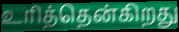
உரித்தென்கிறது